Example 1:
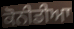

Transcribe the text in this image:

ਕੋਨੀਡੀਆ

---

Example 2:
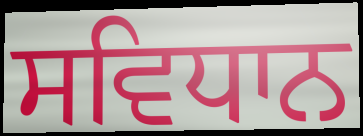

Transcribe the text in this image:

ਸਵਿਧਾਨ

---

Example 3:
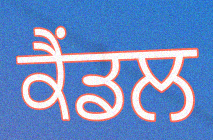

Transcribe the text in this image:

ਕੈਂਡਲ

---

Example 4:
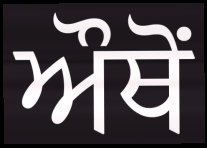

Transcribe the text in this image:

ਔਥੋਂ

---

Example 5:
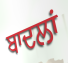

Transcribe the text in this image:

ਬਾਦਲਾਂ